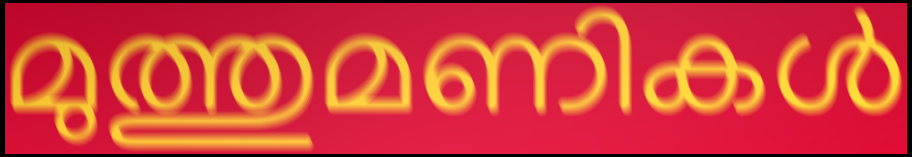
മുത്തുമണികൾ